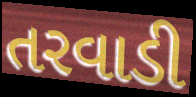
તરવાડી